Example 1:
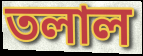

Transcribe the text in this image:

তলাল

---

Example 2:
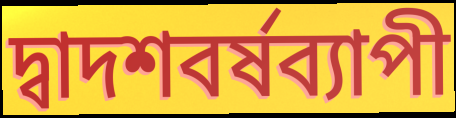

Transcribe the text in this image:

দ্বাদশবর্ষব্যাপী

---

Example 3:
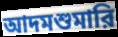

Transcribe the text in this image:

আদমশুমারি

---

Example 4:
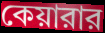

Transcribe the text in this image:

কেয়ারার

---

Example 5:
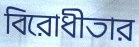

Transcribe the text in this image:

বিরোধীতার